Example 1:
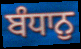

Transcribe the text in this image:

ਬੰਧਾਨੁ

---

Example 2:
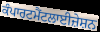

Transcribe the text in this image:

ਕੰਪਾਰਟਮੈਂਟਲਾਈਜ਼ੇਸ਼ਨ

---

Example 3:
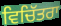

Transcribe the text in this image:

ਵਿਚਿੱਤਰਾ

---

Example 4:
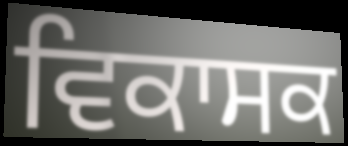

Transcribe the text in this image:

ਵਿਕਾਸਕ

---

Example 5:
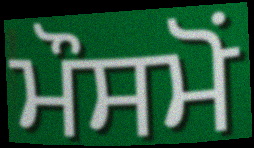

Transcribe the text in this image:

ਮੌਸਮੋਂ